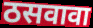
ठसवावा